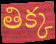
తిక్క